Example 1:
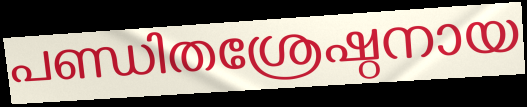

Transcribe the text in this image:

പണ്ഡിതശ്രേഷ്ഠനായ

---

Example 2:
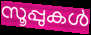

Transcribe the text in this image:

സൂപ്പുകൾ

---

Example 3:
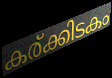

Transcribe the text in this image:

കര്ക്കിടകം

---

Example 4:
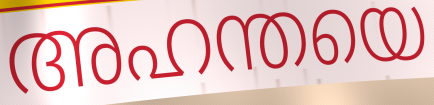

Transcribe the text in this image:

അഹന്തയെ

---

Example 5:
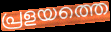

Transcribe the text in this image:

പ്രളയത്തെ